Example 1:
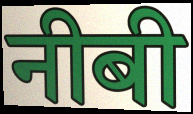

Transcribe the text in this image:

नीबी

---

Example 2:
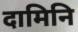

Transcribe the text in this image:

दामिनि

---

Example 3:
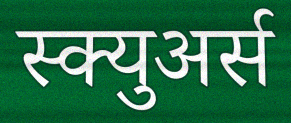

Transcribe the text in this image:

स्क्युअर्स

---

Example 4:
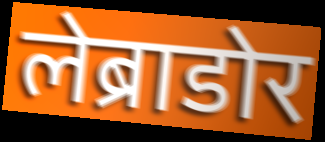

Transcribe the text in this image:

लेब्राडोर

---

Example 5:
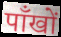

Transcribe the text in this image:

पाँखों